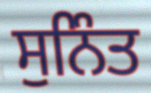
ਸੁਨਿੰਤ